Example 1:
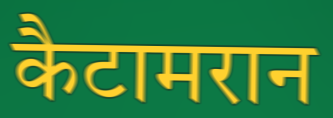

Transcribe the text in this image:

कैटामरान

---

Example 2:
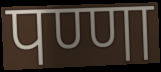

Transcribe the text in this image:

पण्णा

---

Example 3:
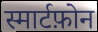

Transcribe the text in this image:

स्‍मार्टफ़ोन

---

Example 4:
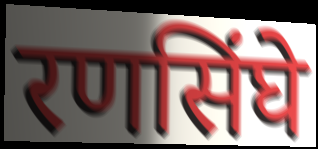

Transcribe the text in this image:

रणसिंघे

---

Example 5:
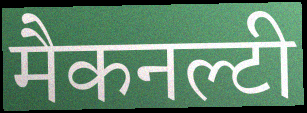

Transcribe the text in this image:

मैकनल्टी